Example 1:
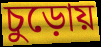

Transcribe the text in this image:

চুড়োয়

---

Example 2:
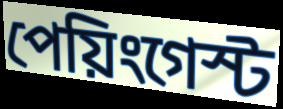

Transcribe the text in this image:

পেয়িংগেস্ট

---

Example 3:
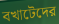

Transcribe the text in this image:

বখাটেদের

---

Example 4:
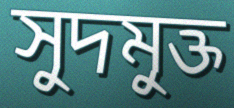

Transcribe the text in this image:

সুদমুক্ত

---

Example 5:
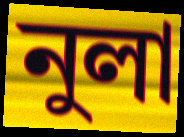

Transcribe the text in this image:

নুলা